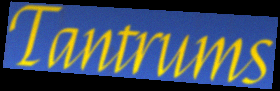
Tantrums